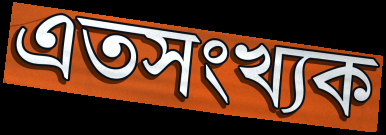
এতসংখ্যক